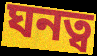
ঘনত্ব